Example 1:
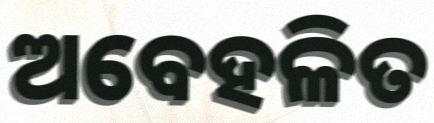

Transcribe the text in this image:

ଅବେହଳିତ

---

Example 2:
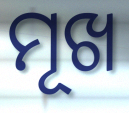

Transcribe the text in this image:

ମୂଖ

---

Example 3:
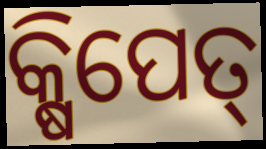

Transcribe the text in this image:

କ୍ଷିପେତ୍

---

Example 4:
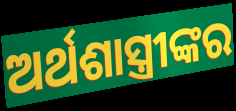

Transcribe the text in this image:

ଅର୍ଥଶାସ୍ତ୍ରୀଙ୍କର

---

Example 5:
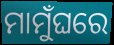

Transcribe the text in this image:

ମାମୁଁଘରେ